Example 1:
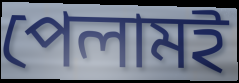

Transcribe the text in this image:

পেলামই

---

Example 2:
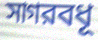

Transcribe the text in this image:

সাগরবধূ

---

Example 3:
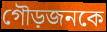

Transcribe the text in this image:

গৌড়জনকে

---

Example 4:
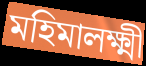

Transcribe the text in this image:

মহিমালক্ষ্মী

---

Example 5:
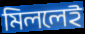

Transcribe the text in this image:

মিললেই